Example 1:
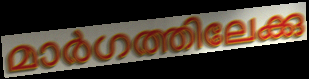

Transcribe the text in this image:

മാർഗത്തിലേക്കു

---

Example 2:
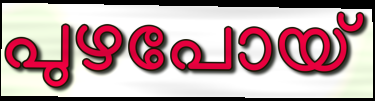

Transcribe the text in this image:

പുഴപോയ്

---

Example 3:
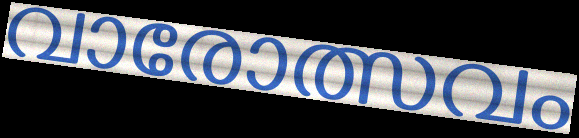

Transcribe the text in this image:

വാരോത്സവം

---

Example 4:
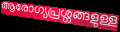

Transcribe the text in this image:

ആരോഗ്യപ്രശ്നങ്ങളുള്ള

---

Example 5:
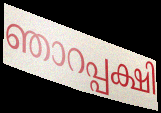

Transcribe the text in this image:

ഞാറപ്പക്ഷി